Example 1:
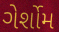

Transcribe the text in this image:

ગેર્શોમ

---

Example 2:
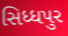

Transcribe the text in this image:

સિધ્ધપુર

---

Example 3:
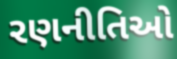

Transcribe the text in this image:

રણનીતિઓ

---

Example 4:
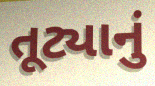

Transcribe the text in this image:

તૂટ્યાનું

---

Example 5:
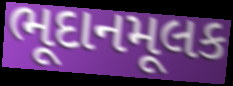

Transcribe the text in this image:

ભૂદાનમૂલક